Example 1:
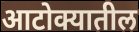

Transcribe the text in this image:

आटोक्यातील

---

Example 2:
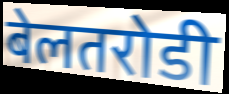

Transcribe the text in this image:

बेलतरोडी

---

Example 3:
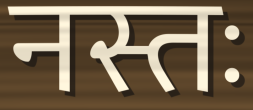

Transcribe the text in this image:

नस्तः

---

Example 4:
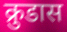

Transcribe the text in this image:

क्रुडास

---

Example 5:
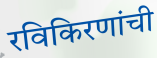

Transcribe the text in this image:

रविकिरणांची